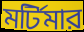
মর্টিমার